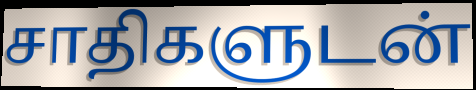
சாதிகளுடன்